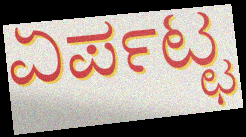
ಏರ್ಪಟ್ಟ